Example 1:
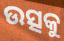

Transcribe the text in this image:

ଉତ୍ସକୁ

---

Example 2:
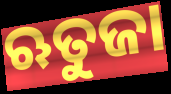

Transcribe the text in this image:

ଋତୁଜା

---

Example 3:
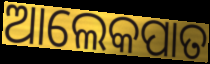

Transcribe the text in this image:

ଆଲେକପାତ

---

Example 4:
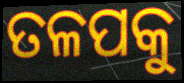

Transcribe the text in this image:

ତଳପକୁ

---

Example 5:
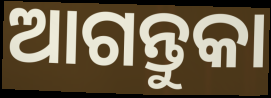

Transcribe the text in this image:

ଆଗନ୍ତୁକା